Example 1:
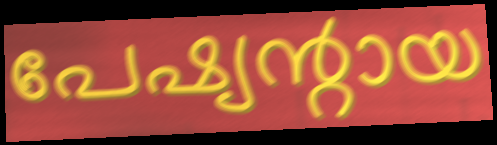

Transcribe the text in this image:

പേഷ്യന്റായ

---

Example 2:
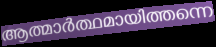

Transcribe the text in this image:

ആത്മാർത്ഥമായിത്തന്നെ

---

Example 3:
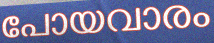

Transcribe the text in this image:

പോയവാരം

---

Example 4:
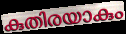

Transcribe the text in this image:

കുതിരയാകും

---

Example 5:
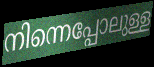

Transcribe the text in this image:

നിന്നെപ്പോലുള്ള